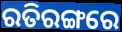
ରତିରଙ୍ଗରେ